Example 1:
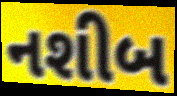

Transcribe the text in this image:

નશીબ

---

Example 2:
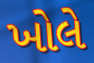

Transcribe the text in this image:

ખોલે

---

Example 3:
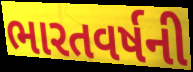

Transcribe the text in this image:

ભારતવર્ષની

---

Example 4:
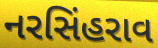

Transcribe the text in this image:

નરસિંહરાવ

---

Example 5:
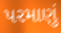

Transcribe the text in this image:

પરમાણું